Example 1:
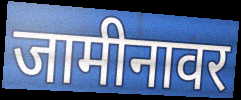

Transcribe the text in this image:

जामीनावर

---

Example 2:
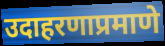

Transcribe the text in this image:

उदाहरणाप्रमाणे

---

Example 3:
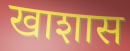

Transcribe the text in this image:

खाशास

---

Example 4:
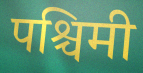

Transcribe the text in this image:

पश्चिमी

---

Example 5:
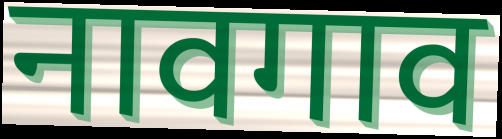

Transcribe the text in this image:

नावगाव